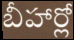
బీహార్లో